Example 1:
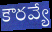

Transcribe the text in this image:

కౌరవ్యే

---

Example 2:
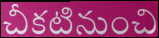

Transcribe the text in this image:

చీకటినుంచి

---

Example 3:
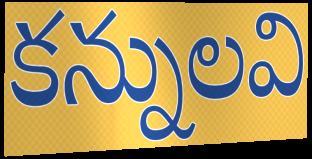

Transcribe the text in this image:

కన్నులవి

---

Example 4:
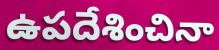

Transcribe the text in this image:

ఉపదేశించినా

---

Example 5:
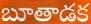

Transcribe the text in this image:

బూతాడక